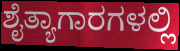
ಶೈತ್ಯಾಗಾರಗಳಲ್ಲಿ